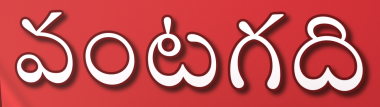
వంటగది